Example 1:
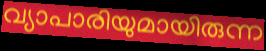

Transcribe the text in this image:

വ്യാപാരിയുമായിരുന്ന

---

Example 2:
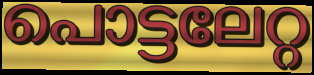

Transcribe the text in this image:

പൊട്ടലേറ്റ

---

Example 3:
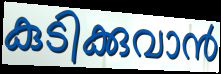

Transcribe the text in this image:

കുടിക്കുവാൻ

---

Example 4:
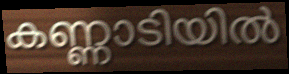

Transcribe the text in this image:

കണ്ണാടിയിൽ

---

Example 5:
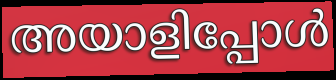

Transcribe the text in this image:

അയാളിപ്പോൾ